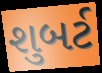
શુબર્ટ